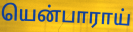
யென்பாராய்